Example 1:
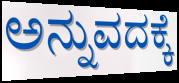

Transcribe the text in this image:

ಅನ್ನುವದಕ್ಕೆ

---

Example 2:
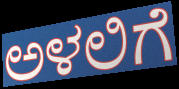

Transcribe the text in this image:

ಅಳಲಿಗೆ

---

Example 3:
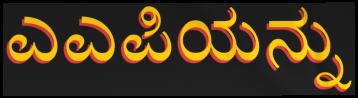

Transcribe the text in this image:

ಎಎಪಿಯನ್ನು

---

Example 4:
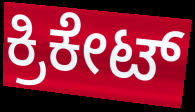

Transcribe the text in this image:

ಕ್ರಿಕೇಟ್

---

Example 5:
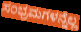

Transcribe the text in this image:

ಸಂಭ್ರಮಗಳನ್ನೆಲ್ಲ